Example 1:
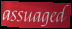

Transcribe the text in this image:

assuaged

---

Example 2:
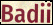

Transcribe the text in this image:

Badii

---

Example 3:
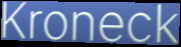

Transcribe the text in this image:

Kroneck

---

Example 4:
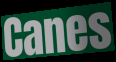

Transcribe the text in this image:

Canes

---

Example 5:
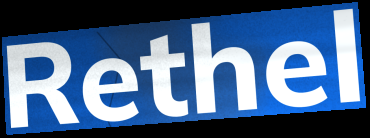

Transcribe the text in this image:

Rethel